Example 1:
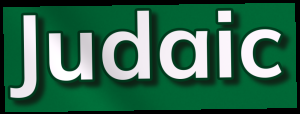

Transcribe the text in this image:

Judaic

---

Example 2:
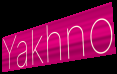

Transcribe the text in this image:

Yakhno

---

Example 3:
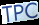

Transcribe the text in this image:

TPC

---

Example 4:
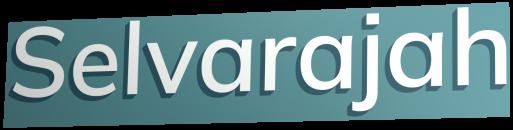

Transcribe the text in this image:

Selvarajah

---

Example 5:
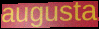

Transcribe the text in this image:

augusta